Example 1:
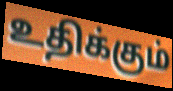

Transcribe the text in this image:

உதிக்கும்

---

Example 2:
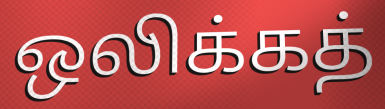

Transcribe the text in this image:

ஒலிக்கத்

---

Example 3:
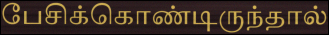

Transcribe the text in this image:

பேசிக்கொண்டிருந்தால்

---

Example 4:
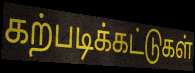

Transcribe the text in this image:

கற்படிக்கட்டுகள்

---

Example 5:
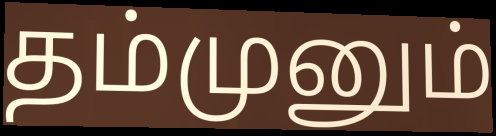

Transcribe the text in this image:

தம்முனும்